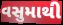
વસુમાથી